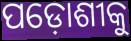
ପଡ଼ୋଶୀକୁ